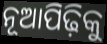
ନୂଆପିଢ଼ିକୁ